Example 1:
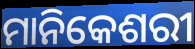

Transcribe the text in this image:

ମାନିକେଶରୀ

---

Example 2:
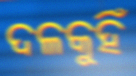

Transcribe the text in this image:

ଦଳକୁହିଁ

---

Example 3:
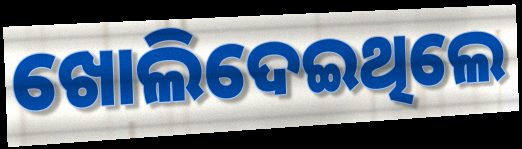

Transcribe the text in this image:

ଖୋଲିଦେଇଥିଲେ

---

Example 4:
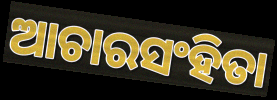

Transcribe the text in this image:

ଆଚାରସଂହିତା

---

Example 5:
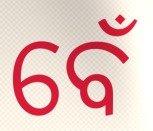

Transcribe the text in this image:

ବେଁ